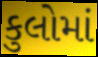
કુલોમાં